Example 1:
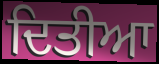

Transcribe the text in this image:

ਦਿਤੀਆ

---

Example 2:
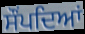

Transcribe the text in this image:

ਸੌਂਪਦਿਆਂ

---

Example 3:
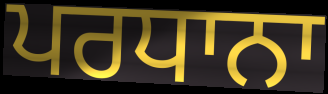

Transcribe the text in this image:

ਪਰਧਾਨਾ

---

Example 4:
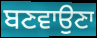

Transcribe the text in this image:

ਬਣਵਾਉਣਾ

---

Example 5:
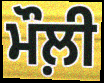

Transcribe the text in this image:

ਮੌਲ਼ੀ